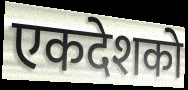
एकदेशको